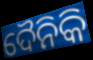
ଦୈନିକି